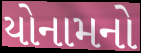
યોનામનો